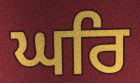
ਘਰਿ